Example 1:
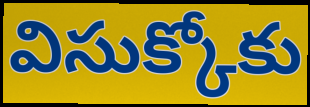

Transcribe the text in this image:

విసుక్కోకు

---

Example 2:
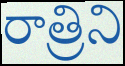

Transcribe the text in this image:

రాత్రిని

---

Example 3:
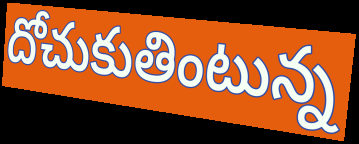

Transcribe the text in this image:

దోచుకుతింటున్న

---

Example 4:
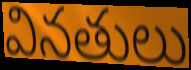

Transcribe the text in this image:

వినతులు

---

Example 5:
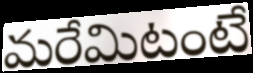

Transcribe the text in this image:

మరేమిటంటే